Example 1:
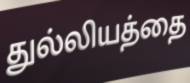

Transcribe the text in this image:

துல்லியத்தை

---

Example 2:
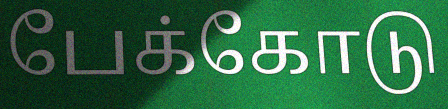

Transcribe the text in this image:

பேக்கோடு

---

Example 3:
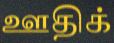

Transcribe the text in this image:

ஊதிக்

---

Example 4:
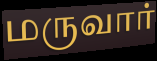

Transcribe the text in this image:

மருவார்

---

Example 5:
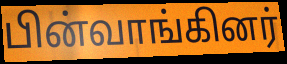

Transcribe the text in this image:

பின்வாங்கினர்